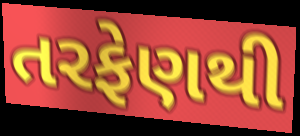
તરફેણથી